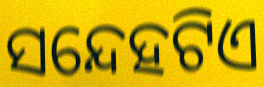
ସନ୍ଦେହଟିଏ